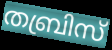
തബ്രിസ്